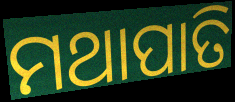
ମଥାପାତି